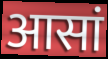
आसां